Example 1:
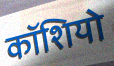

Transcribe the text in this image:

कॉशियो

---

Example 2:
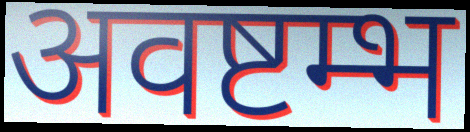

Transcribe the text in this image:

अवष्टम्भ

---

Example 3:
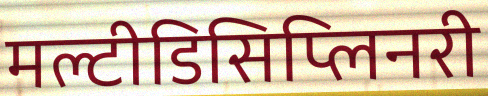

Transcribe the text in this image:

मल्टीडिसिप्लिनरी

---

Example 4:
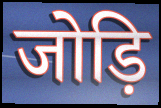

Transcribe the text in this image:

जोड़ि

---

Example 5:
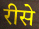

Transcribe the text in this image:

रीसे